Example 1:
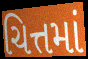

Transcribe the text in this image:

ચિત્તમાં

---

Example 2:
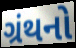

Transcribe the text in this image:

ગ્રંથનો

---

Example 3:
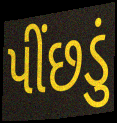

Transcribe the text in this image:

પીંછડું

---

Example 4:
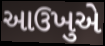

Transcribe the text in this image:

આઉખુએ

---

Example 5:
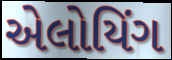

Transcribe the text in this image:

એલોયિંગ